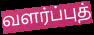
வளர்ப்புத்